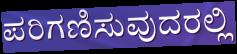
ಪರಿಗಣಿಸುವುದರಲ್ಲಿ